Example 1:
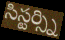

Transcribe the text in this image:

సిస్టర్స్ని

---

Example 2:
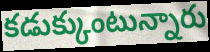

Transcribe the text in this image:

కడుక్కుంటున్నారు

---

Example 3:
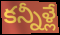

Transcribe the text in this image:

కన్నీళ్లే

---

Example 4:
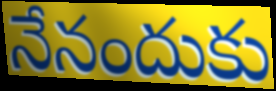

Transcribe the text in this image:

నేనందుకు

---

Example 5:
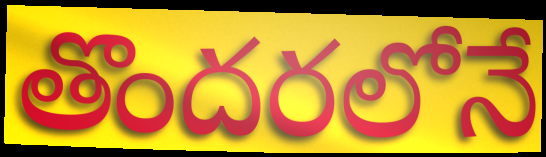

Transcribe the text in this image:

తొందరలోనే